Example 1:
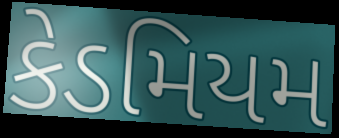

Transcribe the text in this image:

કેડમિયમ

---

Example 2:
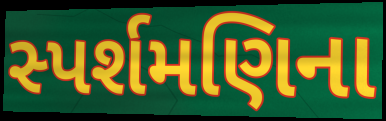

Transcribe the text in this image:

સ્પર્શમણિના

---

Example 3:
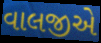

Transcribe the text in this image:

વાલજીએ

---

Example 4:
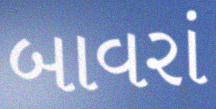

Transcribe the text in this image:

બાવરાં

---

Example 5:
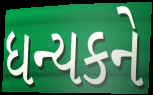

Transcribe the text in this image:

ધન્યકને